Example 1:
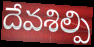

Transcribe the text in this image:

దేవశిల్పి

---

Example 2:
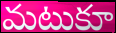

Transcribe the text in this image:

మటుకూ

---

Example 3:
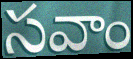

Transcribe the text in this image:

సవాం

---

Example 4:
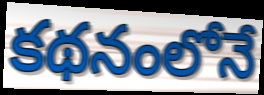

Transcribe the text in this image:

కథనంలోనే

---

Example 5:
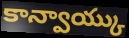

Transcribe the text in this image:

కాన్వాయ్కు